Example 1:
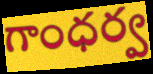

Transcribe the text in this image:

గాంధర్వ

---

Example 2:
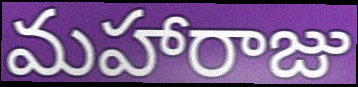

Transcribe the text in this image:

మహారాజు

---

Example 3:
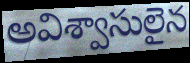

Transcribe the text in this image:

అవిశ్వాసులైన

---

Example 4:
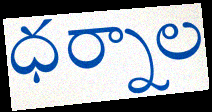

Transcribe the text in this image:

ధర్నాల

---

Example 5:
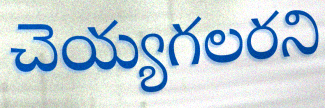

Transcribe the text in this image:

చెయ్యగలరని